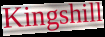
Kingshill